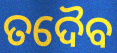
ତଦୈବ